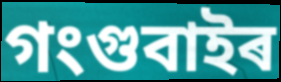
গংগুবাইৰ